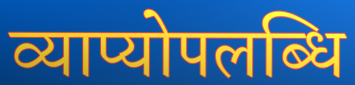
व्याप्योपलब्धि